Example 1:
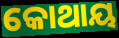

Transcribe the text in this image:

କୋଥାୟ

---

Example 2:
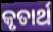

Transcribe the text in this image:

କୃତାର୍ଥ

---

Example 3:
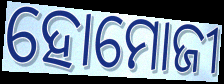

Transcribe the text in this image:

ହୋମୋଜୀ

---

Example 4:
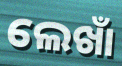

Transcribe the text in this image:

ଲେଖାଁ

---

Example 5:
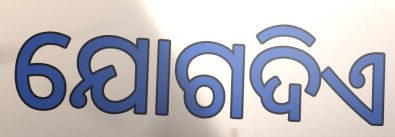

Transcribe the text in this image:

ଯୋଗଦିଏ